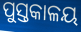
ପୁସ୍ତକାଳୟ